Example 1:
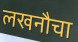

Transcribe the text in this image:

लखनौचा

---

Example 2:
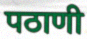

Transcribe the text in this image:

पठाणी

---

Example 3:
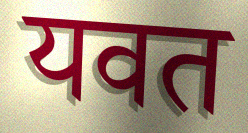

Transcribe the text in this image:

यवत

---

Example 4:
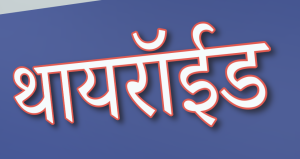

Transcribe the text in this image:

थायरॉईड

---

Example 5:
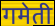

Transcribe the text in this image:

गमेती